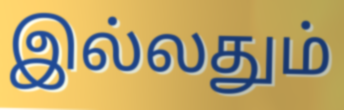
இல்லதும்